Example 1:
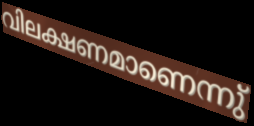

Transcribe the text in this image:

വിലക്ഷണമാണെന്നു്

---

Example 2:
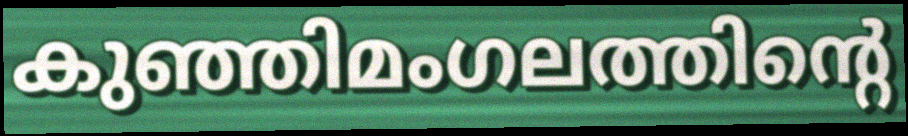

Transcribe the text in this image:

കുഞ്ഞിമംഗലത്തിന്റെ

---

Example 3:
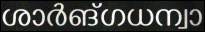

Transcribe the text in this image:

ശാർങ്ഗധന്വാ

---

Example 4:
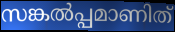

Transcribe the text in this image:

സങ്കൽപ്പമാണിത്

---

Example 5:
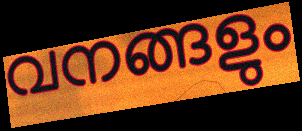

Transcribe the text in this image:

വനങ്ങളും